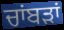
ਚਾਂਬੜਾਂ